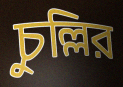
চুল্লির